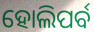
ହୋଲିପର୍ବ